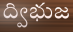
ద్విభుజ